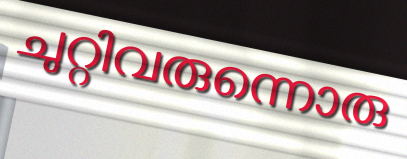
ചുറ്റിവരുന്നൊരു